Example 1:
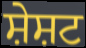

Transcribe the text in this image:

ਸ਼ੇਸ਼ਟ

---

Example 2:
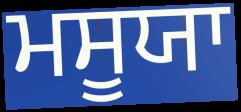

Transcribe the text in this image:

ਮਸੂਯਾ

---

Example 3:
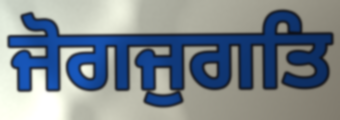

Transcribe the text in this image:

ਜੋਗਜੁਗਤਿ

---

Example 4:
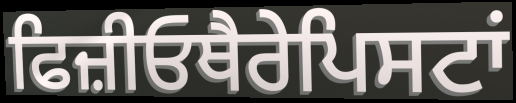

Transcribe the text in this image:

ਫਿਜ਼ੀਓਥੈਰੇਪਿਸਟਾਂ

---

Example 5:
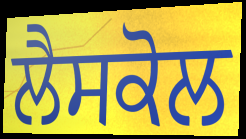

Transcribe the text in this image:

ਲੈਸਕੋਲ